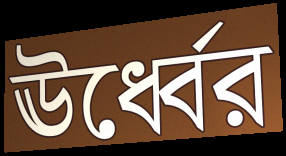
ঊর্ধ্বের